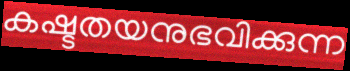
കഷ്ടതയനുഭവിക്കുന്ന